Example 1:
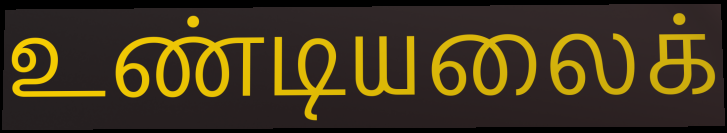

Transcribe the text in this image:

உண்டியலைக்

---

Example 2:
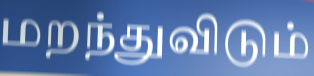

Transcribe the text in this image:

மறந்துவிடும்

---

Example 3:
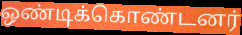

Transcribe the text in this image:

ஒண்டிக்கொண்டனர்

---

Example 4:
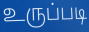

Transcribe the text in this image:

உருப்படி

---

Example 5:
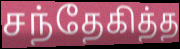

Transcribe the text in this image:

சந்தேகித்த